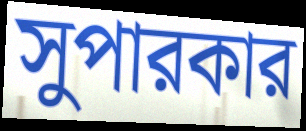
সুপারকার